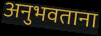
अनुभवताना